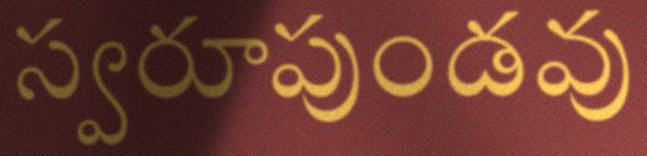
స్వరూపుండవు